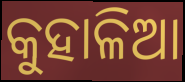
କୁହାଳିଆ